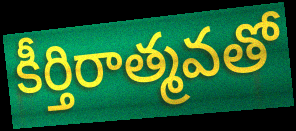
కీర్తిరాత్మవతో